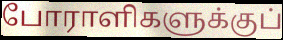
போராளிகளுக்குப்